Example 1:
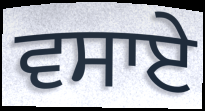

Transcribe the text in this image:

ਵਸਾਏ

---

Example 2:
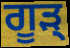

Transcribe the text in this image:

ਗੂੜ੍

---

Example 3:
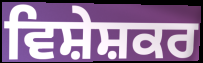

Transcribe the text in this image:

ਵਿਸ਼ੇਸ਼ਕਰ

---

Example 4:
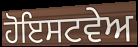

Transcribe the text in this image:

ਹੋਇਸਟਵੇਅ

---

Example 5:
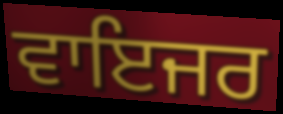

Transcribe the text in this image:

ਵਾਇਜਰ